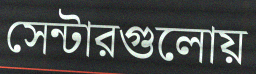
সেন্টারগুলোয়